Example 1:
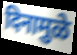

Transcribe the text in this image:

दिनामुळे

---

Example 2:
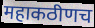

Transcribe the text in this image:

महाकठीणच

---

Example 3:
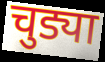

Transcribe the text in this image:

चुड्या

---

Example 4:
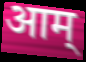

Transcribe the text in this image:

आम्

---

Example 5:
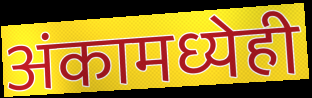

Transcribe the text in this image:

अंकामध्येही